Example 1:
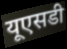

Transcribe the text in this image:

यूएसडी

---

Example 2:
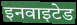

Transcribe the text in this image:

इनवाइटेड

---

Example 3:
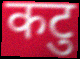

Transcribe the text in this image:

कटु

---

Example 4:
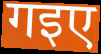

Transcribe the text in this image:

गइए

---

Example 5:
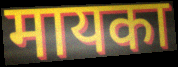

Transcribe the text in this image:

मायका